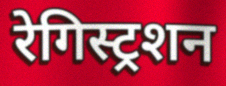
रेगिस्ट्रशन